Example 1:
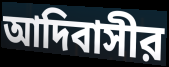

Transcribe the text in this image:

আদিবাসীর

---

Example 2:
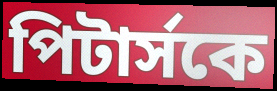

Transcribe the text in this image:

পিটার্সকে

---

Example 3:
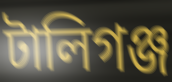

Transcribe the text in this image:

টালিগঞ্জ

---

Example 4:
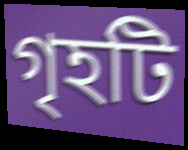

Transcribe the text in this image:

গৃহটি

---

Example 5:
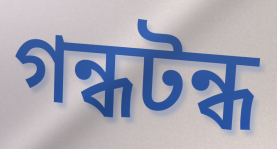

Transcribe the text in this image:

গন্ধটন্ধ